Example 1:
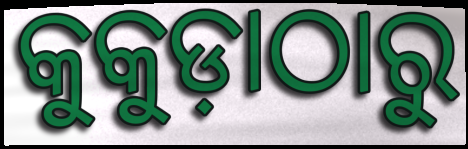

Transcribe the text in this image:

କୁକୁଡ଼ାଠାରୁ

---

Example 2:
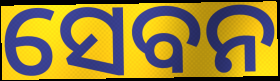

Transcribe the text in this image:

ସେବନ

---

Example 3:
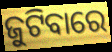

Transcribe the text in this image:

ଜୁଟିବାରେ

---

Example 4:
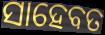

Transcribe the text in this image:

ସାହେବତ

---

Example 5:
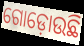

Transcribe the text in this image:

ଗୋଡ଼ୋଉଛି